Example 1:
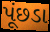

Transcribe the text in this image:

પૂંછડા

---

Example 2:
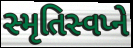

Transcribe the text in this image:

સ્મૃતિસ્વપ્ને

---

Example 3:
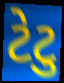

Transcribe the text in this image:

ટેટુ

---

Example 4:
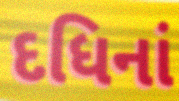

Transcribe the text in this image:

દધિનાં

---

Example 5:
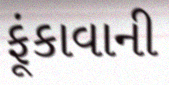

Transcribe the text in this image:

ફૂંકાવાની